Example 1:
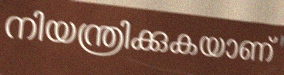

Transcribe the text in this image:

നിയന്ത്രിക്കുകയാണ്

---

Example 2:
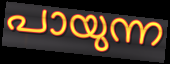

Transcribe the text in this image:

പായുന്ന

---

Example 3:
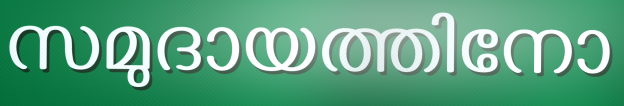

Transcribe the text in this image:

സമുദായത്തിനോ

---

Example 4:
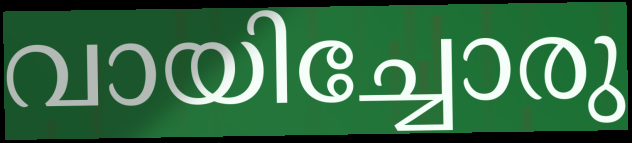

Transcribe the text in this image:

വായിച്ചോരു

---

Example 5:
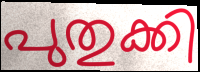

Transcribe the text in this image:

പുതുക്കി